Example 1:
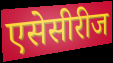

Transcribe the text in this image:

एसेसीरीज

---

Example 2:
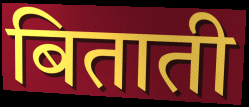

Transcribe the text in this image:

बिताती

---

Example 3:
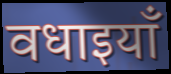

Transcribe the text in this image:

वधाइयाँ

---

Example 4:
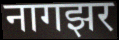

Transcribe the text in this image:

नागझर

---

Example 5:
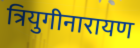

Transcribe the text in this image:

त्रियुगीनारायण